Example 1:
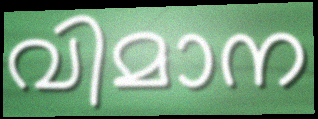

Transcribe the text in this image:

വിമാന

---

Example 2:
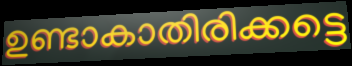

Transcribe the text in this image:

ഉണ്ടാകാതിരിക്കട്ടെ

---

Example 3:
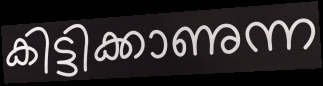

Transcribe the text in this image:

കിട്ടിക്കാണുന്ന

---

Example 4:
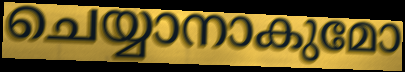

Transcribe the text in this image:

ചെയ്യാനാകുമോ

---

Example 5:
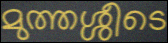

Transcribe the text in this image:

മുത്തശ്ശീടെ